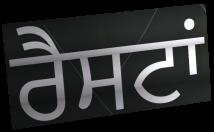
ਰੈਸਟਾਂ